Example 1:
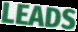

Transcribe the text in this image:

LEADS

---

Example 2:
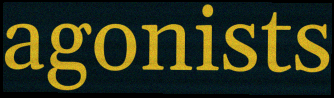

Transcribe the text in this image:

agonists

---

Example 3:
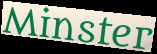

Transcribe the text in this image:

Minster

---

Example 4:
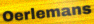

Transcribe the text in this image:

Oerlemans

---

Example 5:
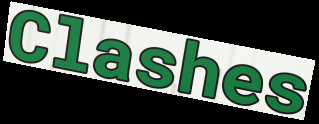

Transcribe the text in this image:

Clashes